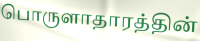
பொருளாதாரத்தின்